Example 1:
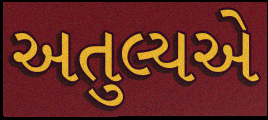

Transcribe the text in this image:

અતુલ્યએ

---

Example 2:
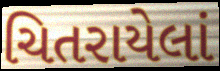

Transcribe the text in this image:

ચિતરાયેલાં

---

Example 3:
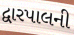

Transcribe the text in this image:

દ્વારપાલની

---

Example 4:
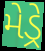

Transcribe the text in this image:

મેડ્રે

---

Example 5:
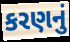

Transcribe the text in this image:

કરણનું